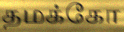
தமக்கோ